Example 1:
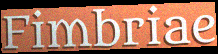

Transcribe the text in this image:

Fimbriae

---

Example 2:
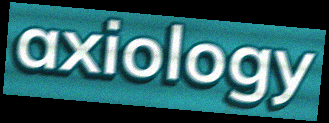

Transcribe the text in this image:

axiology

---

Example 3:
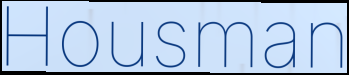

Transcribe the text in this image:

Housman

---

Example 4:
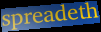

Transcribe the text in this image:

spreadeth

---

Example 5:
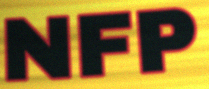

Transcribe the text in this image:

NFP